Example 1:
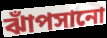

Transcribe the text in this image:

ঝাঁপসানো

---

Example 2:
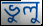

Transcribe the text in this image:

ভুলু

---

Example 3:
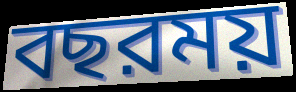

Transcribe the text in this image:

বছরময়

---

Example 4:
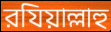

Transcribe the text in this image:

রযিয়াল্লাহু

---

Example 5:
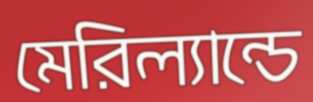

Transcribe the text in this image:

মেরিল্যান্ডে